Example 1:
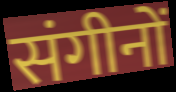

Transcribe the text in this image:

संगीनों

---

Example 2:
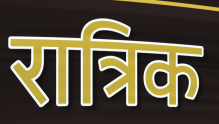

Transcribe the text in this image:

रात्रिक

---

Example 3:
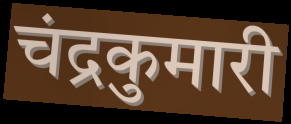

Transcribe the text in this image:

चंद्रकुमारी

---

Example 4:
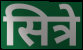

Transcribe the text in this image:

सित्रे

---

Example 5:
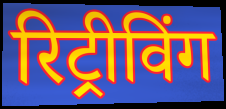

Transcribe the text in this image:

रिट्रीविंग